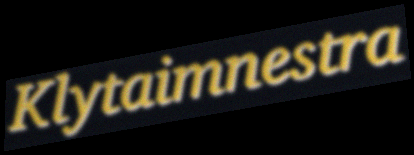
Klytaimnestra